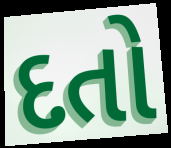
દતો